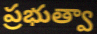
ప్రభుత్వా